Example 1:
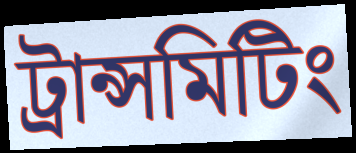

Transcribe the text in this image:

ট্রান্সমিটিং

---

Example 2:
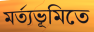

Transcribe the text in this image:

মর্ত্যভূমিতে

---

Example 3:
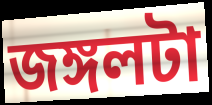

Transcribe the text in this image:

জঙ্গলটা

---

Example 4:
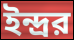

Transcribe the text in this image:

ইন্দ্রর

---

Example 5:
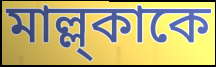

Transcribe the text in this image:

মাল্ল্কাকে